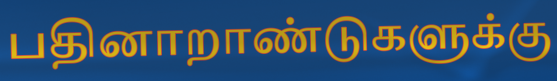
பதினாறாண்டுகளுக்கு